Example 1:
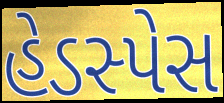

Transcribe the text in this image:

હેડસ્પેસ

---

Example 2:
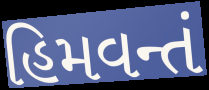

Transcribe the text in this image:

હિમવન્તં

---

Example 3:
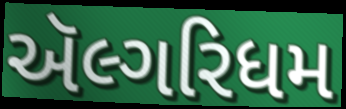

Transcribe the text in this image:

ઍલ્ગરિધમ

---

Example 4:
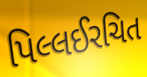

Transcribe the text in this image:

પિલ્લઈરચિત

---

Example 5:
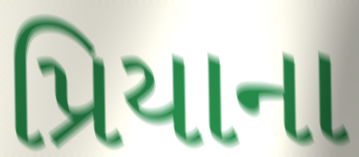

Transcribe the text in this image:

પ્રિયાના